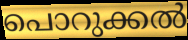
പൊറുക്കൽ